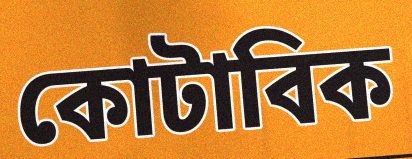
কোটাবিক